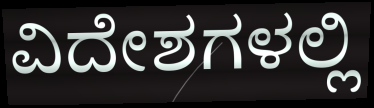
ವಿದೇಶಗಳಲ್ಲಿ